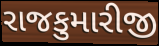
રાજકુમારીજી